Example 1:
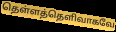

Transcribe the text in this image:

தெள்ளத்தெளிவாகவே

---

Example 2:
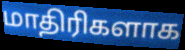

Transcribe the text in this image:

மாதிரிகளாக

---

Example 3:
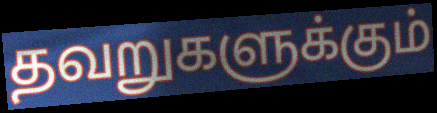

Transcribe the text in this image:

தவறுகளுக்கும்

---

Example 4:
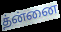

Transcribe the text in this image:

த்ன்னை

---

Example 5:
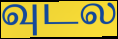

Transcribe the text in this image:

வுடல